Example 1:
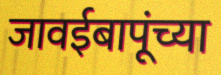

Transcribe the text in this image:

जावईबापूंच्या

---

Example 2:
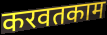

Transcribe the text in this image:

करवतकाम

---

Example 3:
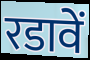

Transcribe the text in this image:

रडावें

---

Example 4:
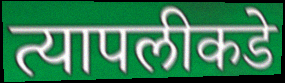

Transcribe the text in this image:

त्यापलीकडे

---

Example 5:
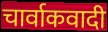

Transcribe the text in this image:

चार्वाकवादी